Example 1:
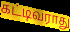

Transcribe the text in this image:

கட்டிவராது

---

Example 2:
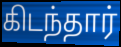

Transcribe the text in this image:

கிடந்தார்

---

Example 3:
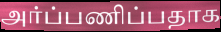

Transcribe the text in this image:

அர்ப்பணிப்பதாக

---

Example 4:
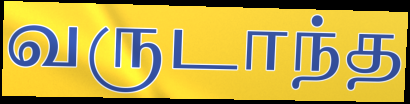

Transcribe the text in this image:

வருடாந்த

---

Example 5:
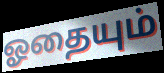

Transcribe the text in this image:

ஓதையும்